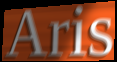
Aris